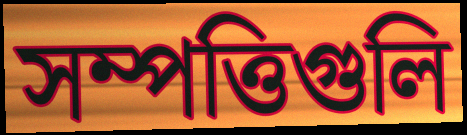
সম্পত্তিগুলি